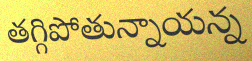
తగ్గిపోతున్నాయన్న